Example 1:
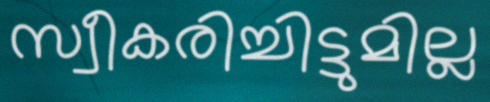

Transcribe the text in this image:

സ്വീകരിച്ചിട്ടുമില്ല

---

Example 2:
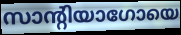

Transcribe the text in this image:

സാന്റിയാഗോയെ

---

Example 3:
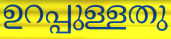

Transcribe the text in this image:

ഉറപ്പുള്ളതു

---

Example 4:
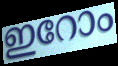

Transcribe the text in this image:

ഇറോം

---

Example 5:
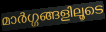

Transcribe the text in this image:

മാർഗ്ഗങ്ങളിലൂടെ